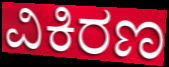
ವಿಕಿರಣ